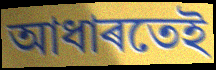
আধাৰতেই